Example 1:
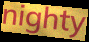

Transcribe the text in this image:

nighty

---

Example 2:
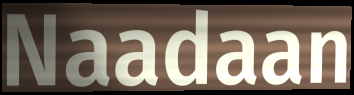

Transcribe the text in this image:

Naadaan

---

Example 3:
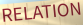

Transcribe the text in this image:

RELATION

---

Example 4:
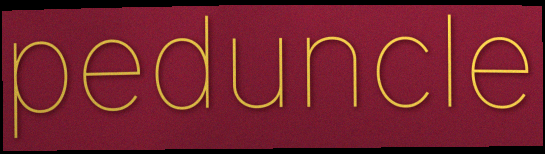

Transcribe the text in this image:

peduncle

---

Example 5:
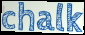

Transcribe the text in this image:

chalk